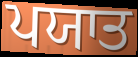
ਪਯਾਤ